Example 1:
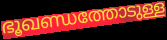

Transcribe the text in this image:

ഭൂഖണ്ഡത്തോടുള്ള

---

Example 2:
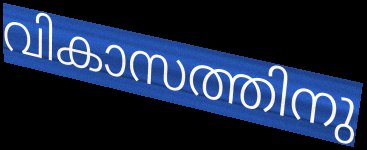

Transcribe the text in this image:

വികാസത്തിനു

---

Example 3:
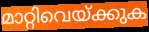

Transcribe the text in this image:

മാറ്റിവെയ്ക്കുക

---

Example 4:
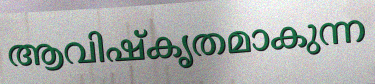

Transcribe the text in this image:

ആവിഷ്കൃതമാകുന്ന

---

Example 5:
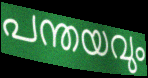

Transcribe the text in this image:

പന്തയവും